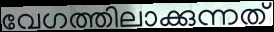
വേഗത്തിലാക്കുന്നത്